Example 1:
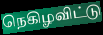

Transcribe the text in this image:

நெகிழவிட்டு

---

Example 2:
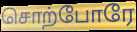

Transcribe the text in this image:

சொற்போரே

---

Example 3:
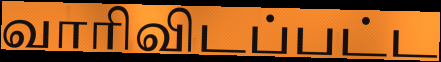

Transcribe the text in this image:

வாரிவிடப்பட்ட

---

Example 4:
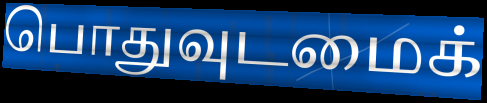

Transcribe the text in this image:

பொதுவுடமைக்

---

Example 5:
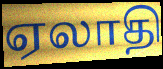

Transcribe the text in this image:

ஏலாதி